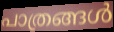
പാത്രങ്ങൾ